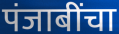
पंजाबींचा